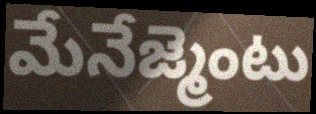
మేనేజ్మెంటు